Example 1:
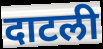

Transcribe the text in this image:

दाटली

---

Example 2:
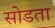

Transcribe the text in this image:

सोडता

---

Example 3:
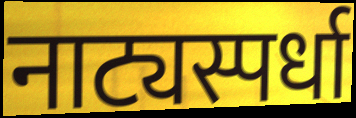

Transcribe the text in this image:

नाट्यस्पर्धा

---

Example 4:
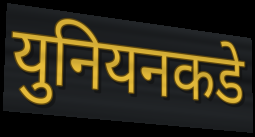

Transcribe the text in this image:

युनियनकडे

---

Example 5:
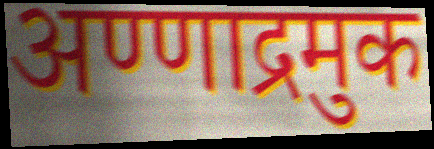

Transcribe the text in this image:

अण्णाद्रमुक